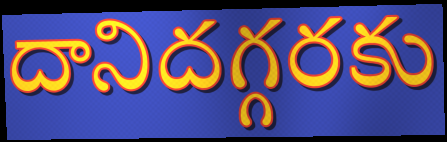
దానిదగ్గరకు